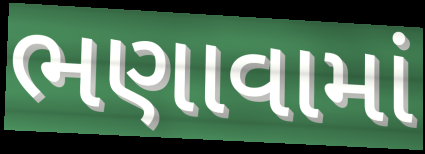
ભણાવામાં